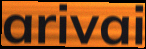
arivai